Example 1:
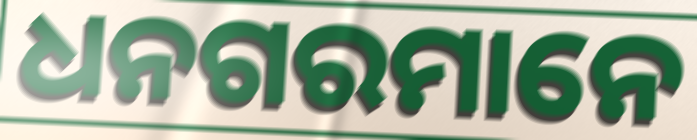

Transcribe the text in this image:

ଧନଗରମାନେ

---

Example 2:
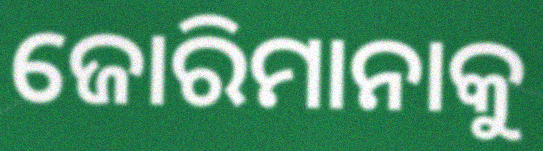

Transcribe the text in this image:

ଜୋରିମାନାକୁ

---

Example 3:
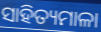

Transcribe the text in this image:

ସାହିତ୍ୟମାଳା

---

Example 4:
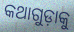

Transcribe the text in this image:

କଥାଗୁଡ଼ାକୁ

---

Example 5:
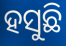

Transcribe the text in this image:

ହସୁଛି